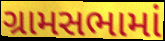
ગ્રામસભામાં